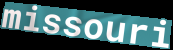
missouri